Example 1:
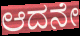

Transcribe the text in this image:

ಆದನೇ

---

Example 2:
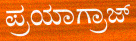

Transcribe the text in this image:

ಪ್ರಯಾಗ್ರಾಜ್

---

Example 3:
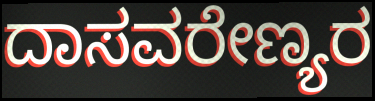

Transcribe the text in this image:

ದಾಸವರೇಣ್ಯರ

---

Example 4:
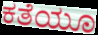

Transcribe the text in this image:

ಕತೆಯೂ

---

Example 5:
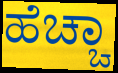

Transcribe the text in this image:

ಹೆಚ್ಚಾ